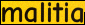
malitia